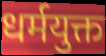
धर्मयुक्त